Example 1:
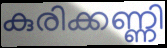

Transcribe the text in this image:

കുരിക്കണ്ണി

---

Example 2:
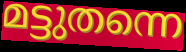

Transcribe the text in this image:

മട്ടുതന്നെ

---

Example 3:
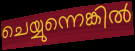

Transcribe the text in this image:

ചെയ്യുന്നെങ്കിൽ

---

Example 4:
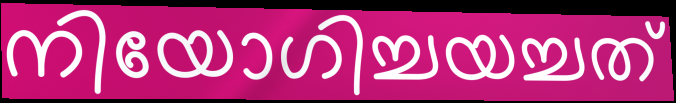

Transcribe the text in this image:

നിയോഗിച്ചയച്ചത്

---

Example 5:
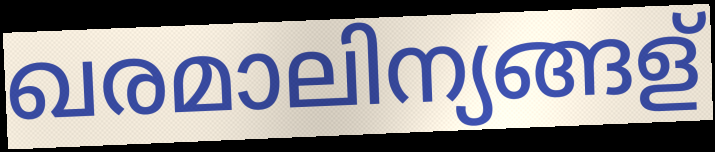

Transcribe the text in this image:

ഖരമാലിന്യങ്ങള്